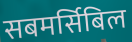
सबमर्सिबिल